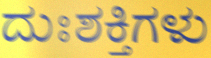
ದುಃಶಕ್ತಿಗಳು